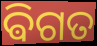
ଵିଗତ